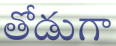
తోడుగా